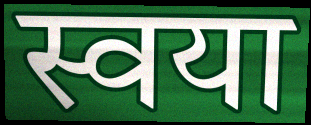
स्वया